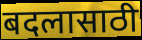
बदलासाठी